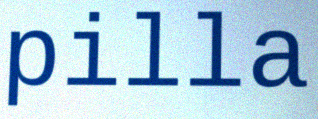
pilla